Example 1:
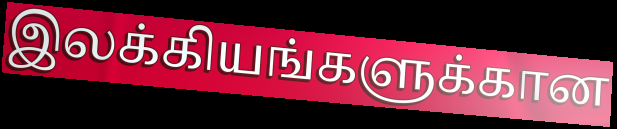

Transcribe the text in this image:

இலக்கியங்களுக்கான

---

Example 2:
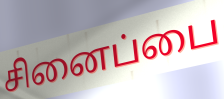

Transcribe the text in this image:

சினைப்பை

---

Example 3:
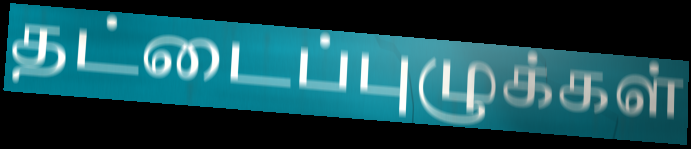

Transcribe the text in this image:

தட்டைப்புழுக்கள்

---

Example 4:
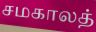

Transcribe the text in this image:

சமகாலத்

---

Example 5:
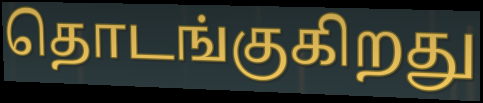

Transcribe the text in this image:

தொடங்குகிறது